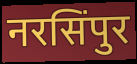
नरसिंपुर